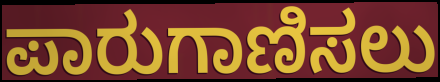
ಪಾರುಗಾಣಿಸಲು